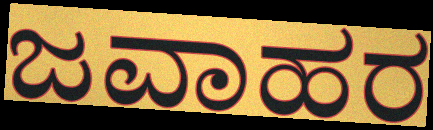
ಜವಾಹರ